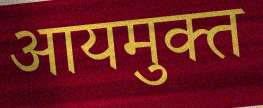
आयमुक्त